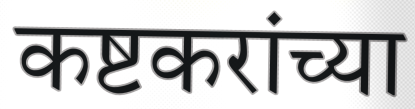
कष्टकरांच्या